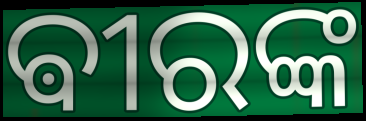
ଵୀରଙ୍କ